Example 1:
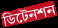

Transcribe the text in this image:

ডিটেনশন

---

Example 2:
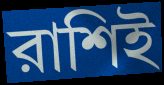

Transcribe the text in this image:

রাশিই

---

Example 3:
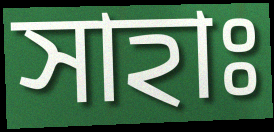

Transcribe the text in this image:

সাহাঃ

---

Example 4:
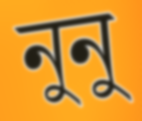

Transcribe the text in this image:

নুনু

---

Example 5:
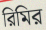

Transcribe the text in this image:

রিমির